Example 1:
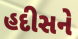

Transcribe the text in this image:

હદીસને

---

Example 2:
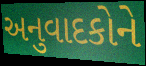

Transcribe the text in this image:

અનુવાદકોને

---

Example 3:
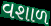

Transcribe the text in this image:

વશાળ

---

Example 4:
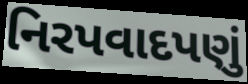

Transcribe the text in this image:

નિરપવાદપણું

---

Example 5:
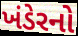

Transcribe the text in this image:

ખંડેરનો